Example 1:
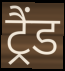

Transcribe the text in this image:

ट्रैंड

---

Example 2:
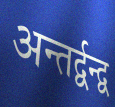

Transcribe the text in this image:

अन्तर्द्वन्द्व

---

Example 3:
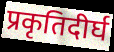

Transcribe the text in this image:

प्रकृतिदीर्घ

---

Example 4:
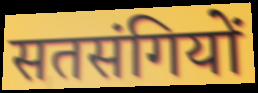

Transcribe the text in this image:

सतसंगियों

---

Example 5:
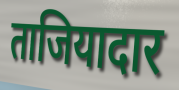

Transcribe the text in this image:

ताजियादार